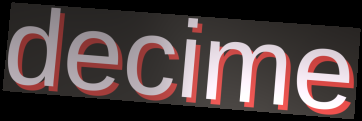
decime